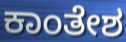
ಕಾಂತೇಶ